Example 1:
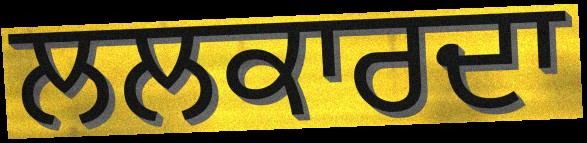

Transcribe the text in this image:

ਲਲਕਾਰਦਾ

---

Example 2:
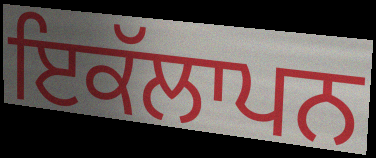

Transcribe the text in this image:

ਇਕੱਲਾਪਨ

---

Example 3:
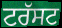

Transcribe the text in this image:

ਟਰੱਸਟ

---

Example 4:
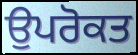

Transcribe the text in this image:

ਉਪਰੋਕਤ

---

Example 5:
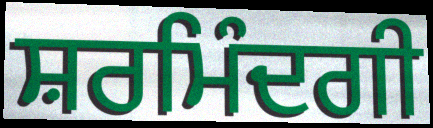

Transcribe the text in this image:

ਸ਼ਰਮਿੰਦਗੀ